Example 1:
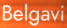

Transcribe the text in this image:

Belgavi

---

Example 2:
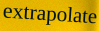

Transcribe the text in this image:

extrapolate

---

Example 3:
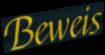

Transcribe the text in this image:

Beweis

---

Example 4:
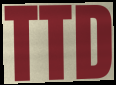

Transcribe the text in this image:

TTD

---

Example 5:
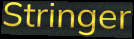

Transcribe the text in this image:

Stringer